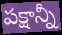
పక్షాన్నీ